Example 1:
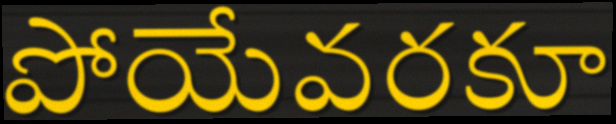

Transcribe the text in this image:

పోయేవరకూ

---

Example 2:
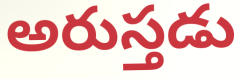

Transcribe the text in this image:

అరుస్తడు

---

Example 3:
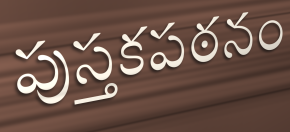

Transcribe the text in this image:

పుస్తకపఠనం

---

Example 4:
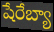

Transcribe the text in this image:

షేరేబ్యా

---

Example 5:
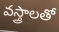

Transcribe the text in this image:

వస్త్రాలతో